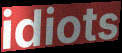
idiots